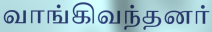
வாங்கிவந்தனர்